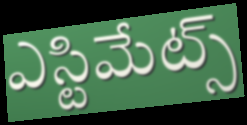
ఎస్టిమేట్స్